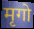
मृगो